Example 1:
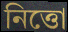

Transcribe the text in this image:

নিত্তো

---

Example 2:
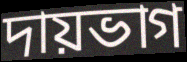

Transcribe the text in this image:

দায়ভাগ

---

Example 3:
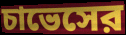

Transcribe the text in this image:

চাভেসের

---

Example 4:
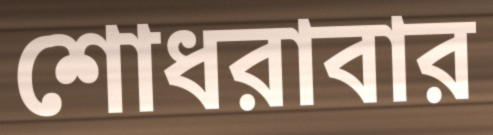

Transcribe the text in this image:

শোধরাবার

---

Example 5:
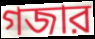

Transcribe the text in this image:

গজার